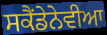
ਸਕੈਂਡੇਨੇਵੀਆ